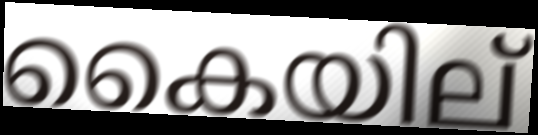
കൈയില്